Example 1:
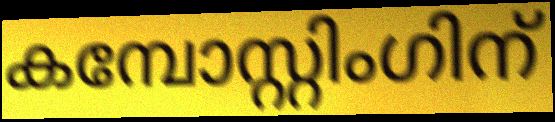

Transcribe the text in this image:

കമ്പോസ്റ്റിംഗിന്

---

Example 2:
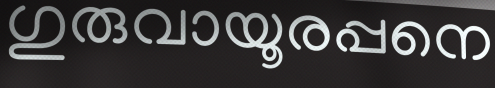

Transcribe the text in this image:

ഗുരുവായൂരപ്പനെ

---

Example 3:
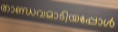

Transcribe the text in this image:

താണ്ഡവമാടിയപ്പോൾ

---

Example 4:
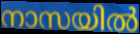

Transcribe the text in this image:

നാസയിൽ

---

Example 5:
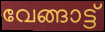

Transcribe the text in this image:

വേങ്ങാട്ട്